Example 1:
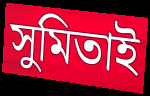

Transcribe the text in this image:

সুমিতাই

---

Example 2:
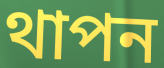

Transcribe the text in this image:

থাপন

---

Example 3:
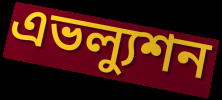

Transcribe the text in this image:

এভল্যুশন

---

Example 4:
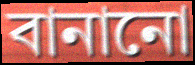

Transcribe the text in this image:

বানানো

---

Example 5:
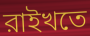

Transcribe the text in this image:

রাইখতে